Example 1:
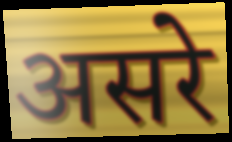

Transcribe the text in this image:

असरे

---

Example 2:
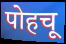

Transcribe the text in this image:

पोहचू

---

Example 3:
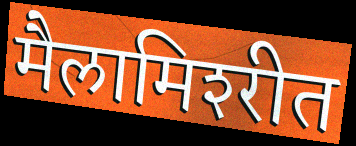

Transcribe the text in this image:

मैलामिश्रीत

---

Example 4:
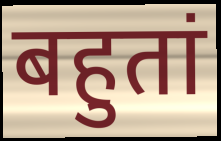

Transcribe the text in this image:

बहुतां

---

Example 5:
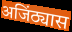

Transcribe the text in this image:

अजिंठ्यास